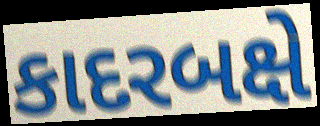
કાદરબક્ષે